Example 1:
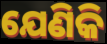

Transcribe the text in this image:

ଯେଣିକି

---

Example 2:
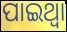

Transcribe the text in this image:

ପାଇଥ୍ବା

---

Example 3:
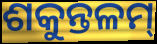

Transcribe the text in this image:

ଶକୁନ୍ତଳମ୍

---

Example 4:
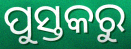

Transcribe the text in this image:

ପୁସ୍ତକରୁ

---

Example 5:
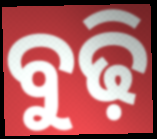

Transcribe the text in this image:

ବୁଢ଼ି